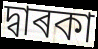
দ্বাৰকা